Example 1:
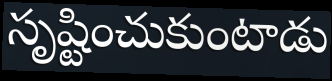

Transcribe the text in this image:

సృష్టించుకుంటాడు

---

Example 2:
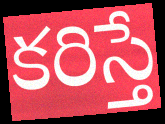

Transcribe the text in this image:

కరిస్తే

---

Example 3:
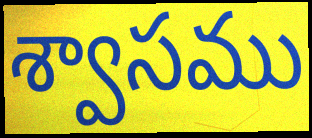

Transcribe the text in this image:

శ్వాసము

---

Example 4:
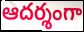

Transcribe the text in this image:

ఆదర్శంగా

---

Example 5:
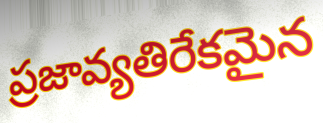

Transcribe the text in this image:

ప్రజావ్యతిరేకమైన